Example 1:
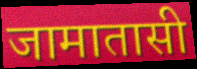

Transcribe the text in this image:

जामातासी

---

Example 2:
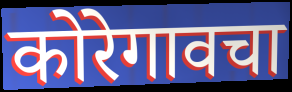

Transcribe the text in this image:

कोरेगावचा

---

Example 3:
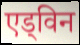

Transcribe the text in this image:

एड्विन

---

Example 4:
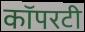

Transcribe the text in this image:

कॉपरटी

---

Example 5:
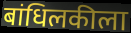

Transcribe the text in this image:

बांधिलकीला